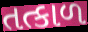
તત્કાળ